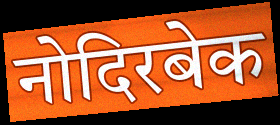
नोदिरबेक